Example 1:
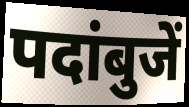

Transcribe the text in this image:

पदांबुजें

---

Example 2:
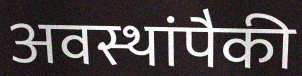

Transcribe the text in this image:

अवस्थांपैकी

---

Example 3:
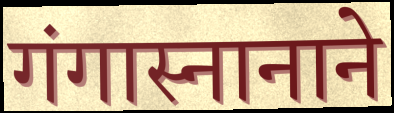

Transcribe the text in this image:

गंगास्नानाने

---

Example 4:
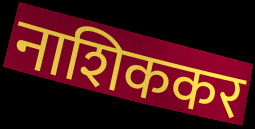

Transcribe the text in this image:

नाशिककर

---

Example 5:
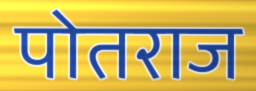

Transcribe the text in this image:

पोतराज